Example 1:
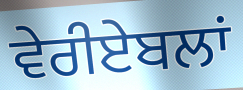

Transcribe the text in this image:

ਵੇਰੀਏਬਲਾਂ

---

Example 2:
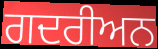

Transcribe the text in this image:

ਗਦਰੀਅਨ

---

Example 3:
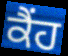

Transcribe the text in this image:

ਕੈਂਹ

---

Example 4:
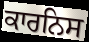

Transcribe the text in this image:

ਕਾਰਨਿਸ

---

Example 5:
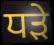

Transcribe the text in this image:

ਧੜੇ